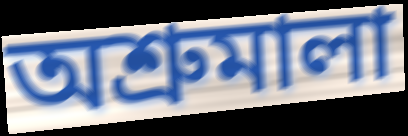
অশ্রুমালা